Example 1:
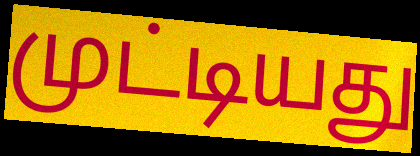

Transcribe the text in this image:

முட்டியது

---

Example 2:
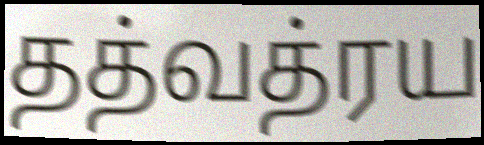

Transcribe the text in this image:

தத்வத்ரய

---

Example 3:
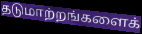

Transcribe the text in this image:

தடுமாற்றங்களைக்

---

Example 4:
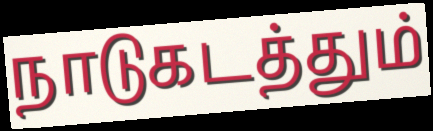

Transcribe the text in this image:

நாடுகடத்தும்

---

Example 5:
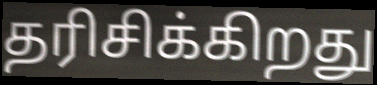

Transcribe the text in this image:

தரிசிக்கிறது